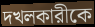
দখলকারীকে